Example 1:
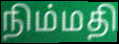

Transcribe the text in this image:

நிம்மதி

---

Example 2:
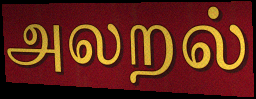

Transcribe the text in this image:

அலறல்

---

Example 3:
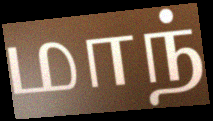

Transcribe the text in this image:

மாந்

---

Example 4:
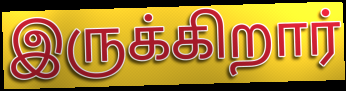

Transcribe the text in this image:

இருக்கிறார்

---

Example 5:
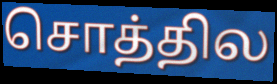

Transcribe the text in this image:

சொத்தில